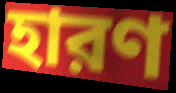
হারণ